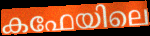
കഫേയിലെ